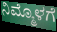
ನಿಮ್ಮೊಳಗೆ